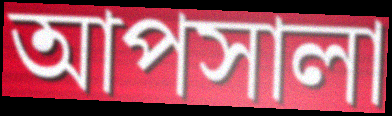
আপসালা